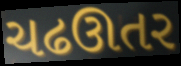
ચઢઊતર